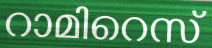
റാമിറെസ്